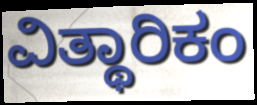
ವಿತ್ಥಾರಿಕಂ